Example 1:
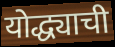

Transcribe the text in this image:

योद्ध्याची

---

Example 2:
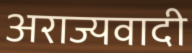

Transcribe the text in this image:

अराज्यवादी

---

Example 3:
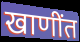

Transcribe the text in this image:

खाणींत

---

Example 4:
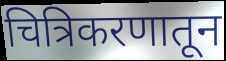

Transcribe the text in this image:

चित्रिकरणातून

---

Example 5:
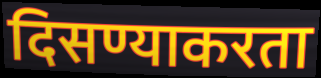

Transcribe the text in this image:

दिसण्याकरता